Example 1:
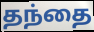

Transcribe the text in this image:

தந்தை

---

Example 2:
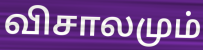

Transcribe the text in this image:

விசாலமும்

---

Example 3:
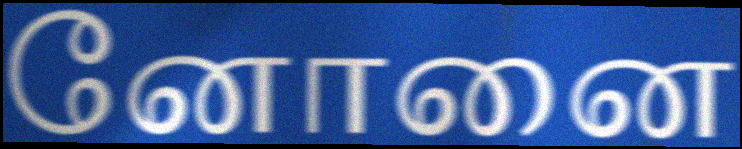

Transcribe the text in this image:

னோனை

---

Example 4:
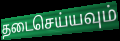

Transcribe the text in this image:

தடைசெய்யவும்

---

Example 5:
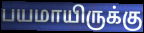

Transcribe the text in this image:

பயமாயிருக்கு